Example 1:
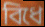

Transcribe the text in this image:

বিধে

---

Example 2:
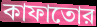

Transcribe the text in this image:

কাফাতোর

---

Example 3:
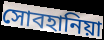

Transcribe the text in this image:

সোবহানিয়া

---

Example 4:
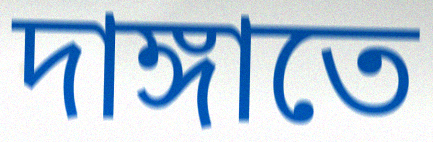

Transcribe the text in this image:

দাঙ্গাতে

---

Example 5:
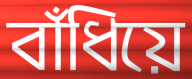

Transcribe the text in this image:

বাঁধিয়ে